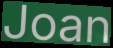
Joan